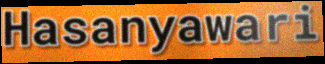
Hasanyawari